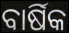
ବାର୍ଷିକ